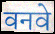
वनवे